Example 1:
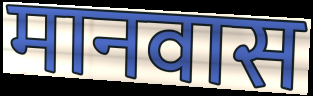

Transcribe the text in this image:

मानवास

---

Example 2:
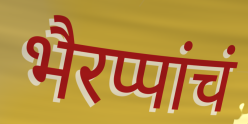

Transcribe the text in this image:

भैरप्पांचं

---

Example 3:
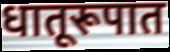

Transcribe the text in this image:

धातूरूपात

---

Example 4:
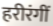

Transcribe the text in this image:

हरीरंगीं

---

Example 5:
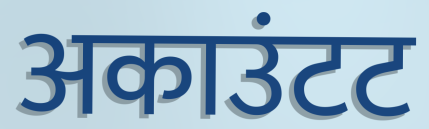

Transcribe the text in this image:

अकाउंटट